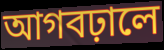
আগবঢ়ালে